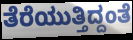
ತೆರೆಯುತ್ತಿದ್ದಂತೆ